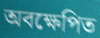
অবক্ষেপিত